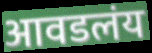
आवडलंय